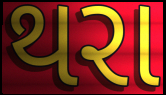
થરા